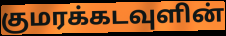
குமரக்கடவுளின்